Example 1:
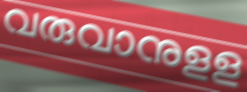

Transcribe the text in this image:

വരുവാനുളള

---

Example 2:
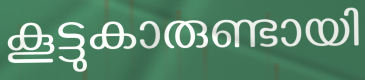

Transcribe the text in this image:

കൂട്ടുകാരുണ്ടായി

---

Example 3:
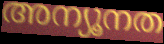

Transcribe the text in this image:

അന്യൂനത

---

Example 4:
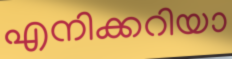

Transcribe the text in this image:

എനിക്കറിയാ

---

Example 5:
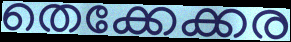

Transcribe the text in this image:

തെക്കേക്കര